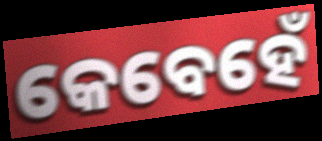
କେବେହେଁ